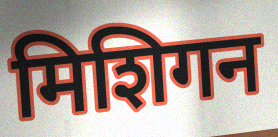
मिशिगन